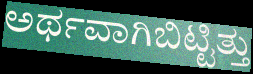
ಅರ್ಥವಾಗಿಬಿಟ್ಟಿತ್ತು